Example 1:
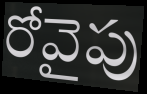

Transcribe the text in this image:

రోవైపు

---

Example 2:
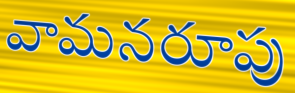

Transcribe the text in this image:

వామనరూపు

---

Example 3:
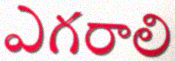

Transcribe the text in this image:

ఎగరాలి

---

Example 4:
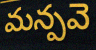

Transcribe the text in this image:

మన్పవె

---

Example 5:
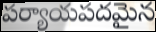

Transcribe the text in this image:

పర్యాయపదమైన